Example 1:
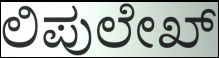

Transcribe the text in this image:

ಲಿಪುಲೇಖ್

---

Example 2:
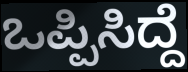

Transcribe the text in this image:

ಒಪ್ಪಿಸಿದ್ದೆ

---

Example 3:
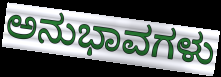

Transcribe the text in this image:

ಅನುಭಾವಗಳು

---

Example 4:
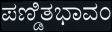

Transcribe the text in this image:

ಪಣ್ಡಿತಭಾವಂ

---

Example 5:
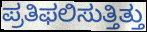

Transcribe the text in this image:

ಪ್ರತಿಫಲಿಸುತ್ತಿತ್ತು